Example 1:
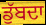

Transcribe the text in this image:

ਡੁੱਬਦਾ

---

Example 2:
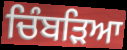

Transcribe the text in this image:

ਚਿੰਬੜਿਆ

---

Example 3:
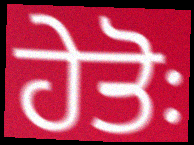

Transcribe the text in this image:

ਹੇਤੋਃ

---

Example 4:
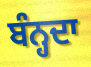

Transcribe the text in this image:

ਬੰਨ੍ਹਦਾ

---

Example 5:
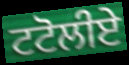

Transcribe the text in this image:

ਟਟੋਲੀਏ